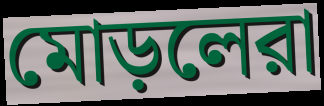
মোড়লেরা